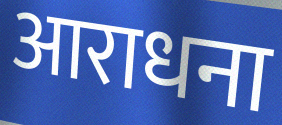
आराधना